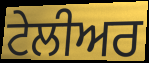
ਟੇਲੀਅਰ